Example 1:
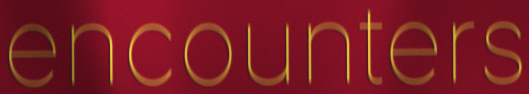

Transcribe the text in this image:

encounters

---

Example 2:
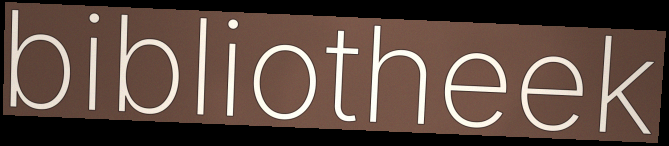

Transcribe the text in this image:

bibliotheek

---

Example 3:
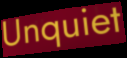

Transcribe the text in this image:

Unquiet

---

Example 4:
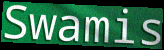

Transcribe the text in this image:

Swamis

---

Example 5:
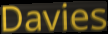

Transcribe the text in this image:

Davies